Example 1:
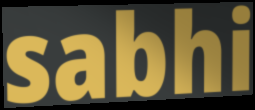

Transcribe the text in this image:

sabhi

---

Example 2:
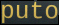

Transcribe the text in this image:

puto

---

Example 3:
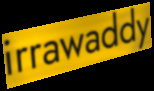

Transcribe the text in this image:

irrawaddy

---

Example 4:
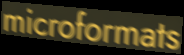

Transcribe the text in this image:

microformats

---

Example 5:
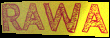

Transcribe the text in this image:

RAWA